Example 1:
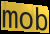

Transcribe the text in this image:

mob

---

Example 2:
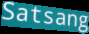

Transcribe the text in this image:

Satsang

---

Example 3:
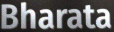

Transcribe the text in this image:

Bharata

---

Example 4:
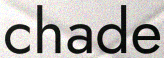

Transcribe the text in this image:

chade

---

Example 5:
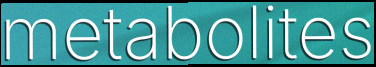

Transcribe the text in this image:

metabolites